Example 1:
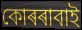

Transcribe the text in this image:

কোৰৰাবাই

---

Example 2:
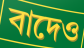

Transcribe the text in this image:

বাদেও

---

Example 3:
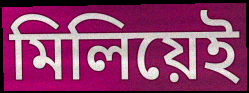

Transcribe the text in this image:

মিলিয়েই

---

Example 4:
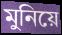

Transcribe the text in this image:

মুনিয়ে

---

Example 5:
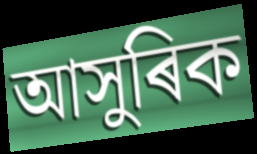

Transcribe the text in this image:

আসুৰিক